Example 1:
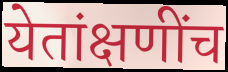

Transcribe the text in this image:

येतांक्षणींच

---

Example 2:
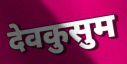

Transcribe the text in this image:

देवकुसुम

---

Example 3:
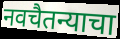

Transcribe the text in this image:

नवचैतन्याचा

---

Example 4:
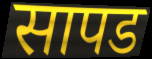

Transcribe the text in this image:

सापड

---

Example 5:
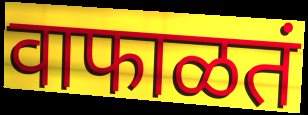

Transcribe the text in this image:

वाफाळतं